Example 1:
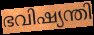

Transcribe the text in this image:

ഭവിഷ്യന്തി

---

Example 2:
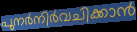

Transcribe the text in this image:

പുനർനിർവചിക്കാൻ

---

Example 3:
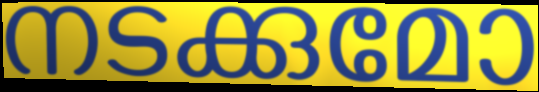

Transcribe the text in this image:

നടക്കുമോ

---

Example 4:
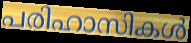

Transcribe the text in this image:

പരിഹാസികൾ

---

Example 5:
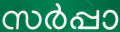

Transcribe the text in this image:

സർപ്പാ